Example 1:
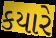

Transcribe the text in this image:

કયારે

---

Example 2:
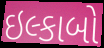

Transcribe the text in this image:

ઇલ્કાબો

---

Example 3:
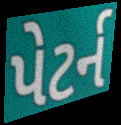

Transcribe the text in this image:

પેટર્ન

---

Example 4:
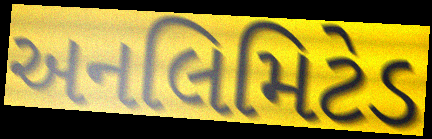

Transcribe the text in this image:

અનલિમિટેડ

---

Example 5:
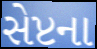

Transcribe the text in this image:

સેપ્ટના